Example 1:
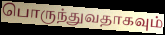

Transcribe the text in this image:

பொருந்துவதாகவும்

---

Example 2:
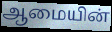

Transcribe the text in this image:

ஆமையின்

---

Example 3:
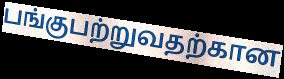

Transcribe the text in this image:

பங்குபற்றுவதற்கான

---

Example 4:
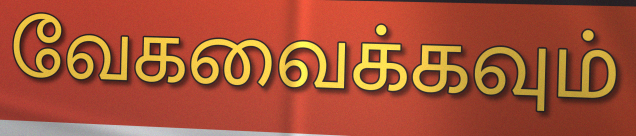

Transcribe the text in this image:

வேகவைக்கவும்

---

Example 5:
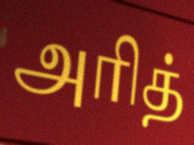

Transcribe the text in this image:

அரித்